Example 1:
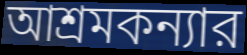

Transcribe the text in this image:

আশ্রমকন্যার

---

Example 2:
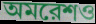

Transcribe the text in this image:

অমরেশও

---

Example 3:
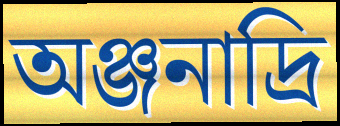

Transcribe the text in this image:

অঞ্জনাদ্রি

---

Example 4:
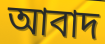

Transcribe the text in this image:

আবাদ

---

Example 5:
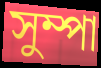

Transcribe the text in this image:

সুম্পা